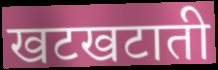
खटखटाती